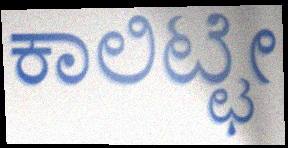
ಕಾಲಿಟ್ಟೇ